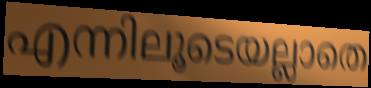
എന്നിലൂടെയല്ലാതെ